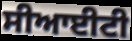
ਸੀਆਈਟੀ